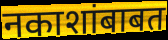
नकाशांबाबत